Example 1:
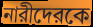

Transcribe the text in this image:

নারীদেরকে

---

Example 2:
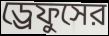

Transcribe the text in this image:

ড্রেফুসের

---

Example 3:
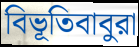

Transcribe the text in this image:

বিভূতিবাবুরা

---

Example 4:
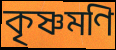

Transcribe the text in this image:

কৃষ্ণমণি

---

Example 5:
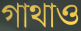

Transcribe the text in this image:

গাথাও